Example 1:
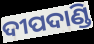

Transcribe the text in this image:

ଦୀପଦାଣ୍ଡି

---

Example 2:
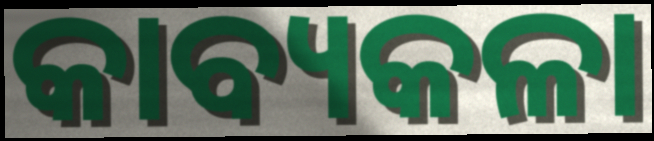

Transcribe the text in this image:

କାବ୍ୟକଳା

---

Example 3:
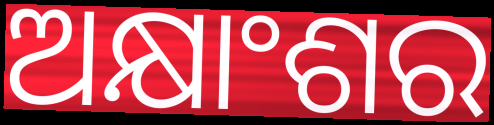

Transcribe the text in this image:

ଅକ୍ଷାଂଶର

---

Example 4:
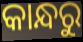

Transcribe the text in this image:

କାନ୍ଧରୁ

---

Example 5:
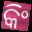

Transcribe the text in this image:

କିଂ